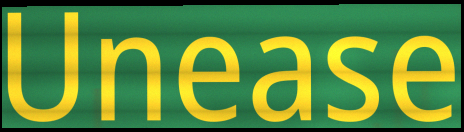
Unease